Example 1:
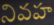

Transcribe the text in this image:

నివహ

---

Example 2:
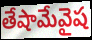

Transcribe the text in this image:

తేషామేవైష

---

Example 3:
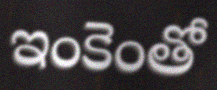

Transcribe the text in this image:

ఇంకెంతో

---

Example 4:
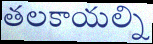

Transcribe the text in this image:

తలకాయల్ని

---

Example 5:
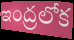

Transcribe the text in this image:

ఇంద్రలోక